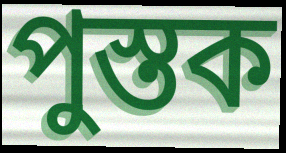
পুস্তক